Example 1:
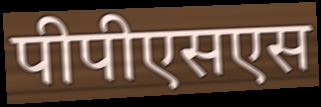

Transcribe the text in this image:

पीपीएसएस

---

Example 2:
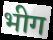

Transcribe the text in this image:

भीग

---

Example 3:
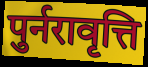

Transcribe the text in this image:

पुर्नरावृत्ति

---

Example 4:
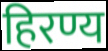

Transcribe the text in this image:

हिरण्य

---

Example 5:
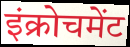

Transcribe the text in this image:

इंक्रोचमेंट